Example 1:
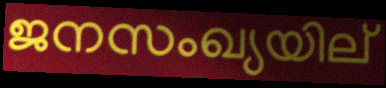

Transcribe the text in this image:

ജനസംഖ്യയില്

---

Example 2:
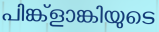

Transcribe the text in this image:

പിങ്ക്ളാങ്കിയുടെ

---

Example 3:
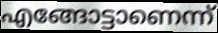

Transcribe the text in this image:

എങ്ങോട്ടാണെന്ന്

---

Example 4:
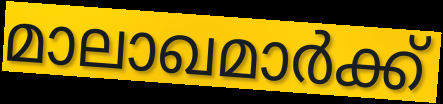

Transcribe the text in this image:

മാലാഖമാർക്ക്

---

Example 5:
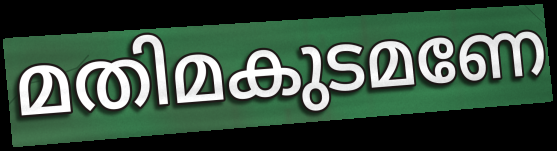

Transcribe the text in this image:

മതിമകുടമണേ